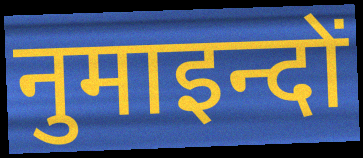
नुमाइन्दों